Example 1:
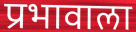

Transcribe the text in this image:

प्रभावाला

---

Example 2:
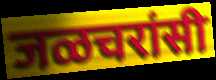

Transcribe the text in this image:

जळचरांसी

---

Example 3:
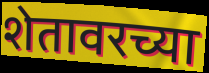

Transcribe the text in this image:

शेतावरच्या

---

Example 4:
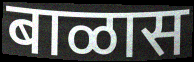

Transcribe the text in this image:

बाळास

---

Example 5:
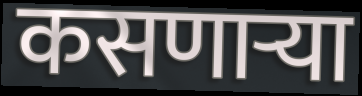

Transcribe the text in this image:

कसणाऱ्या